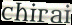
chirai